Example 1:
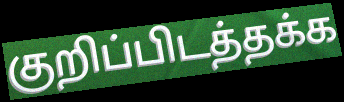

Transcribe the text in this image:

குறிப்பிடத்தக்க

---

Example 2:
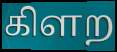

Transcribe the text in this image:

கிளற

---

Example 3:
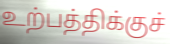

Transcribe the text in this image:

உற்பத்திக்குச்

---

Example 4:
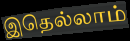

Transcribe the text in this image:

இதெல்லாம்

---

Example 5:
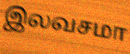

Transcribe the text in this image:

இலவசமா